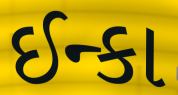
ઈન્કા